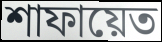
শাফায়েত